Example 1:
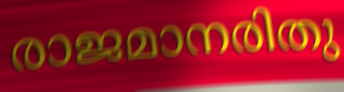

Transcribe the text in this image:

രാജമാനരിതു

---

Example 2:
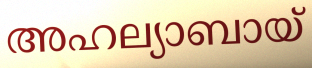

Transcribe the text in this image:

അഹല്യാബായ്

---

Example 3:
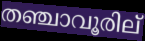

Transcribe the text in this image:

തഞ്ചാവൂരില്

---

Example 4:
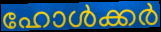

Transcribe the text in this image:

ഹോൾക്കർ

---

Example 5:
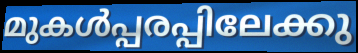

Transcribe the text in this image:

മുകൾപ്പരപ്പിലേക്കു